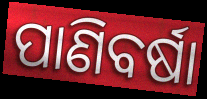
ପାଣିବର୍ଷା